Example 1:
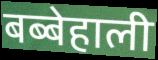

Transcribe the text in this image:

बब्बेहाली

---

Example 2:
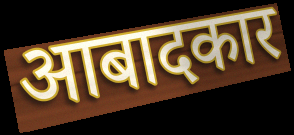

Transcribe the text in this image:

आबादकार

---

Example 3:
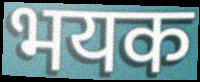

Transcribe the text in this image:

भयक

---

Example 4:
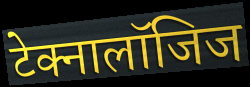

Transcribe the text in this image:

टेक्नालॉजिज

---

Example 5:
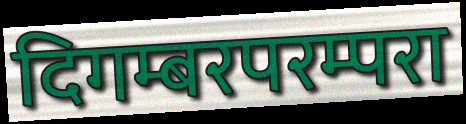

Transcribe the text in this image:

दिगम्बरपरम्परा